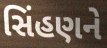
સિંહણને